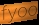
fyoo